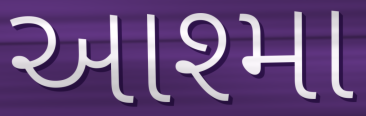
આશ્મા